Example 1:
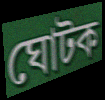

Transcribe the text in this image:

ঘোটক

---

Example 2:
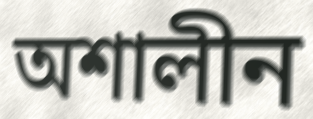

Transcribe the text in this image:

অশালীন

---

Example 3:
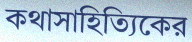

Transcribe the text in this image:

কথাসাহিত্যিকের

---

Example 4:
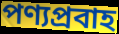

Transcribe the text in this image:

পণ্যপ্রবাহ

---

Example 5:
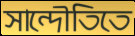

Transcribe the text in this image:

সান্দৌতিতে